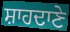
ਸ਼ਾਹਦਾਣੇ